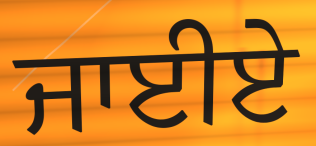
ਜਾਈਏ